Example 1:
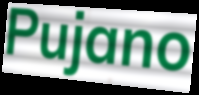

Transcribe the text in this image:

Pujano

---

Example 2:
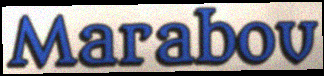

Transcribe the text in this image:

Marabou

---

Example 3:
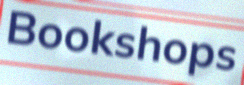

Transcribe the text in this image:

Bookshops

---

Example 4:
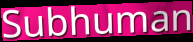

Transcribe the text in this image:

Subhuman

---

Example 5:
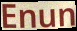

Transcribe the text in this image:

Enun